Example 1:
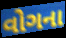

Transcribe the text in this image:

વોગના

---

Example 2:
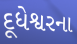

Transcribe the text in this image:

દૂધેશ્વરના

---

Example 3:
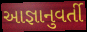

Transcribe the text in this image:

આજ્ઞાનુવર્તી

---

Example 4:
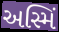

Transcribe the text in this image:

અસ્મિં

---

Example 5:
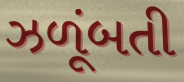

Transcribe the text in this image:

ઝળૂંબતી